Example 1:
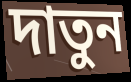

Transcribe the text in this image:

দাতুন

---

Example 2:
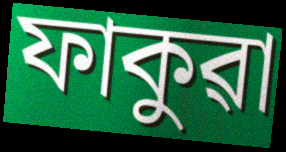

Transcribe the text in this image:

ফাকুৱা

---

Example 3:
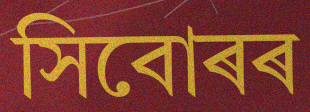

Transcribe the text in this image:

সিবোৰৰ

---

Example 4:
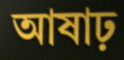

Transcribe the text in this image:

আষাঢ়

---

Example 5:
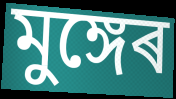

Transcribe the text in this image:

মুঙ্গেৰ